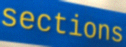
sections